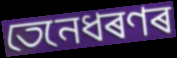
তেনেধৰণৰ